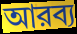
আরব্য